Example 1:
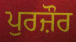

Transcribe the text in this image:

ਪੁਰਜ਼ੌਰ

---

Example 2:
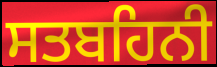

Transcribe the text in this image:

ਸਤਬਹਿਨੀ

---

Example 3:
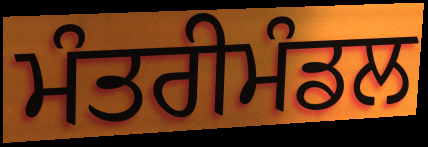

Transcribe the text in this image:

ਮੰਤਰੀਮੰਡਲ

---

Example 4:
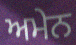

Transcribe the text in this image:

ਅਮੇਨ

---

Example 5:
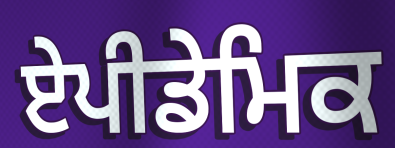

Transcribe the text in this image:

ਏਪੀਡੇਮਿਕ